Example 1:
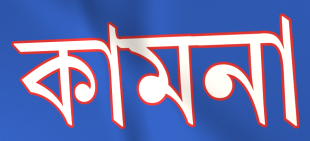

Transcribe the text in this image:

কামনা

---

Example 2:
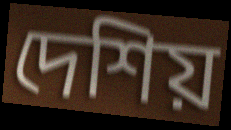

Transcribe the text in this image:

দেশিয়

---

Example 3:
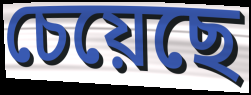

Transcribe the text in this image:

চেয়েছে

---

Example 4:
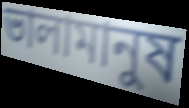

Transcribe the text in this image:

ভালামানুষ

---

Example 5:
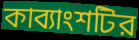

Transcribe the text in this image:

কাব্যাংশটির